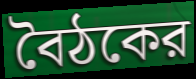
বৈঠকের